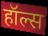
हॉल्स